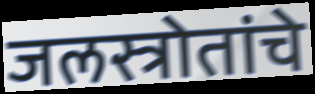
जलस्त्रोतांचे